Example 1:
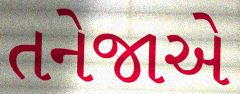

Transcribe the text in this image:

તનેજાએ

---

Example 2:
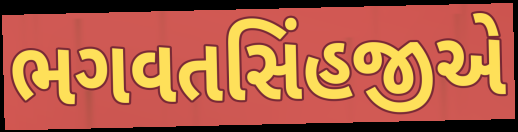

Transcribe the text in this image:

ભગવતસિંહજીએ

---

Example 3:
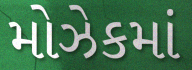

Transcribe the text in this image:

મોઝેકમાં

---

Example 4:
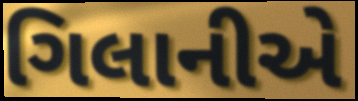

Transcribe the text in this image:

ગિલાનીએ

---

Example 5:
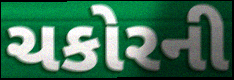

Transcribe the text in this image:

ચકોરની